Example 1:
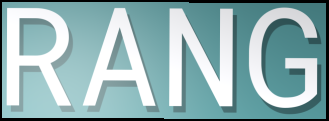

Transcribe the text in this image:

RANG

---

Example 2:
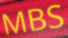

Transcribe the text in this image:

MBS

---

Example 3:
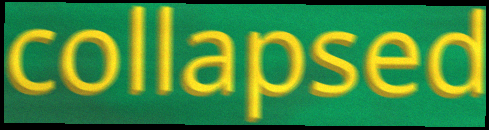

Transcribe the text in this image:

collapsed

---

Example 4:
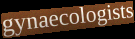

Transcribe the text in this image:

gynaecologists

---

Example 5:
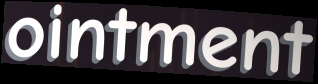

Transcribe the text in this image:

ointment